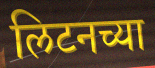
लिटनच्या